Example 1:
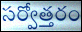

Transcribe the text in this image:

సర్వోత్తరం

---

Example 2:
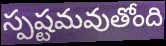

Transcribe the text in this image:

స్పష్టమవుతోంది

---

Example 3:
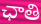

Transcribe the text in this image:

ఛాతి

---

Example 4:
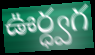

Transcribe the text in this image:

ఊర్ధ్వగ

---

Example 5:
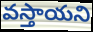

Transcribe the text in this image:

వస్తాయని